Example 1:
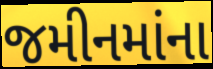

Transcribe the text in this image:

જમીનમાંના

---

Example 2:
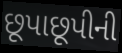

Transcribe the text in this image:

છૂપાછૂપીની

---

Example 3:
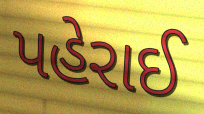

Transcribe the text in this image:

પહેરાઈ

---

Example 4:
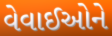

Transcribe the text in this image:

વેવાઈઓને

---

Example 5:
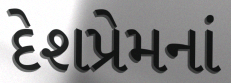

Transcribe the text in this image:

દેશપ્રેમનાં